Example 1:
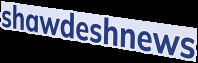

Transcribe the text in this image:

shawdeshnews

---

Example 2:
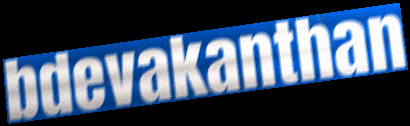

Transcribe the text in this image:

bdevakanthan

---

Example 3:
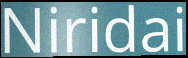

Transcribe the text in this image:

Niridai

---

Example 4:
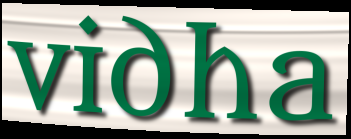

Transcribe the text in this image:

vidha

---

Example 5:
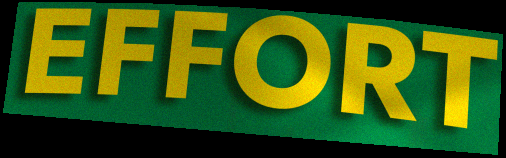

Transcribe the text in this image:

EFFORT